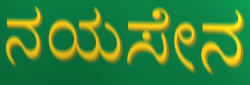
ನಯಸೇನ